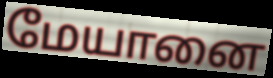
மேயானை